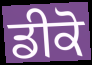
ਡੀਕੋ